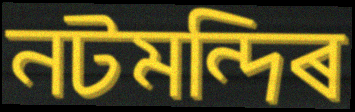
নটমন্দিৰ